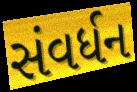
સંવર્ધન